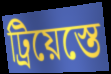
ট্ৰিয়েস্তে